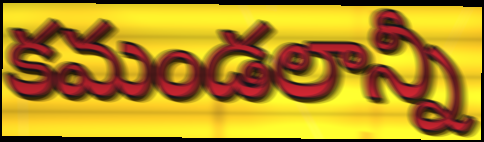
కమండలాన్నీ